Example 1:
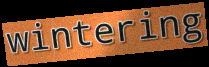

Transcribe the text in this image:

wintering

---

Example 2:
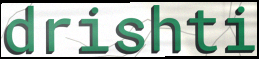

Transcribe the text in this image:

drishti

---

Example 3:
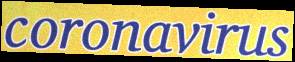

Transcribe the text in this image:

coronavirus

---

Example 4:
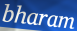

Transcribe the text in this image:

bharam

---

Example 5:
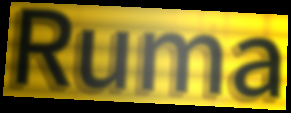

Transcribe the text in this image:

Ruma